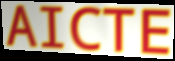
AICTE